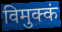
विमुक्कं